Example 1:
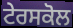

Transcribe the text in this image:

ਟੇਰਸਕੋਲ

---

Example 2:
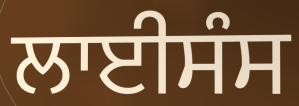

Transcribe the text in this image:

ਲਾਈਸੰਸ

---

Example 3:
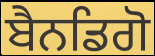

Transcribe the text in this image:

ਬੈਨਡਿਗੋ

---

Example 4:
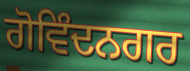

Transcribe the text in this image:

ਗੋਵਿੰਦਨਗਰ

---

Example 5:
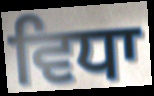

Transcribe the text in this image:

ਵਿਧਾ